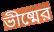
ভীষ্মের